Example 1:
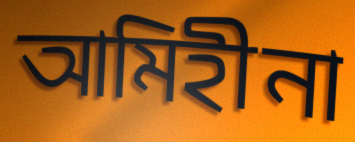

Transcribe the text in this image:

আমিহীনা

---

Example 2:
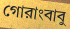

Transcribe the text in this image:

গোরাংবাবু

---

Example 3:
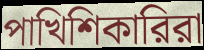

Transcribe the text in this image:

পাখিশিকারিরা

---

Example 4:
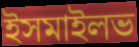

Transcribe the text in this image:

ইসমাইলভ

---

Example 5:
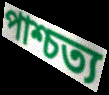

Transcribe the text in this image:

পাশ্চত্য